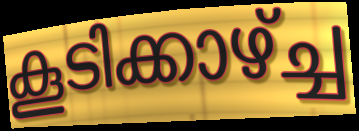
കൂടിക്കാഴ്ച്ച